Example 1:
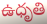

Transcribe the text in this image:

ఉధృతి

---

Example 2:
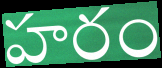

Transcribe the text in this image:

హరం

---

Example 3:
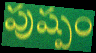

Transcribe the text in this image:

పుష్పం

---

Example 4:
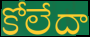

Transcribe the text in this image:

కోలేదా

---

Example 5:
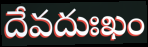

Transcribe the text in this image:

దేవదుఃఖం